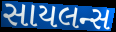
સાયલન્સ